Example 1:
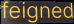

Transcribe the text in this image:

feigned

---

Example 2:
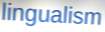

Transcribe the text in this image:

lingualism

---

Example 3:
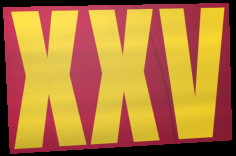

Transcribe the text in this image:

XXV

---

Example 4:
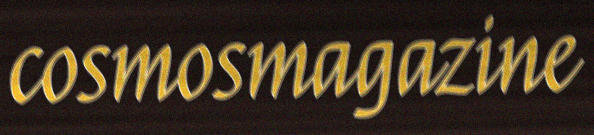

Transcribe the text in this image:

cosmosmagazine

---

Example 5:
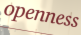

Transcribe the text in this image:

openness